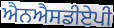
ਐਨਐਸਡੀਏਪੀ